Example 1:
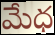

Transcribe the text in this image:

మేధ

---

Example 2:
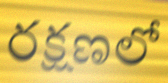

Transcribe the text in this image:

రక్షణలో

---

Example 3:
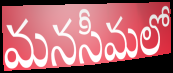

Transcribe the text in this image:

మనసీమలో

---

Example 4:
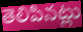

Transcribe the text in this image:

తెలిపినట్లు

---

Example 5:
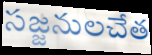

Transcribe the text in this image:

సజ్జనులచేత